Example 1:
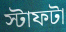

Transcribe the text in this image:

স্টাফটা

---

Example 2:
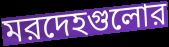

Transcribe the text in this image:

মরদেহগুলোর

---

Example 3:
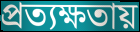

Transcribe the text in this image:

প্রত্যক্ষতায়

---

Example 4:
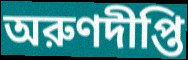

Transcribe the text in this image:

অরুণদীপ্তি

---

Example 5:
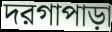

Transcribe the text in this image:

দরগাপাড়া